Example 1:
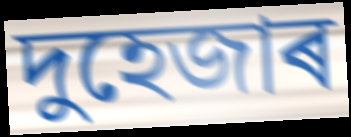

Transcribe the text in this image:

দুহেজাৰ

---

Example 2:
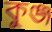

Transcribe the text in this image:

কুঞ্জ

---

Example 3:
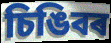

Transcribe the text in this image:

চিঙিবৰ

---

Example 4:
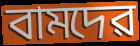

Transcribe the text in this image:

বামদেৱ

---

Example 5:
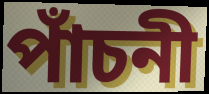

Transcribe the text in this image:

পাঁচনী